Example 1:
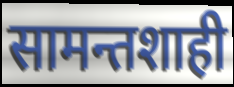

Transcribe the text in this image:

सामन्तशाही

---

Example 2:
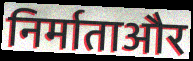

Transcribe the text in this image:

निर्माताऔर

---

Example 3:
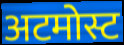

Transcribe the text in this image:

अटमोस्ट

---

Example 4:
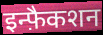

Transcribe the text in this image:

इन्फ़ैकशन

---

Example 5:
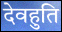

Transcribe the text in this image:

देवहुति